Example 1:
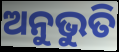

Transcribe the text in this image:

ଅନୁଭୁତି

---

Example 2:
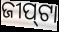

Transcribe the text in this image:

ଜୀପ୍‍ଟା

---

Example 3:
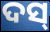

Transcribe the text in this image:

ଦସ୍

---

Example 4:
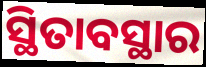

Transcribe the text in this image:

ସ୍ଥିତାବସ୍ଥାର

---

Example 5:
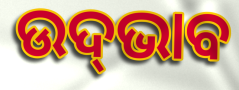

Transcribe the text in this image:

ଉଦ୍‍ଭାବ